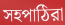
সহপাঠিরা